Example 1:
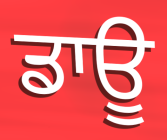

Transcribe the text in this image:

ਡਾਊ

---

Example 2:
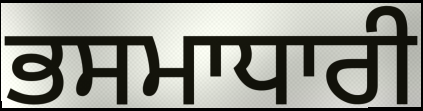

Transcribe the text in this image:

ਭਸਮਾਧਾਰੀ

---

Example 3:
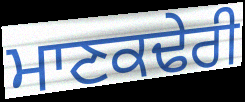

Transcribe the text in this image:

ਮਾਣਕਢੇਰੀ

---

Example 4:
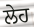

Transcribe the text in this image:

ਲੇਹ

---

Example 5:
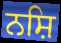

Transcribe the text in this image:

ਨਸ਼ਿ